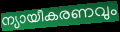
ന്യായീകരണവും